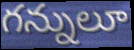
గన్నులూ